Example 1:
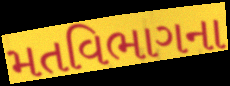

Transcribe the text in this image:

મતવિભાગના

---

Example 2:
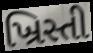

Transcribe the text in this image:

ખ્રિસ્તી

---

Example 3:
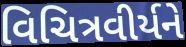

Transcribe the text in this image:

વિચિત્રવીર્યને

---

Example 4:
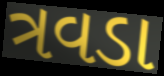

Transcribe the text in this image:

ત્રવડા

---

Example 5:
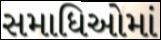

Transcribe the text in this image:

સમાધિઓમાં